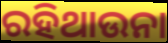
ରହିଥାଉନା